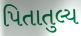
પિતાતુલ્ય